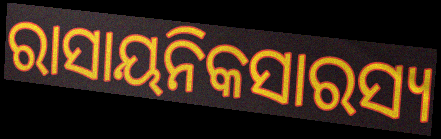
ରାସାୟନିକସାରସ୍ୟ